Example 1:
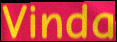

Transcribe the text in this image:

Vinda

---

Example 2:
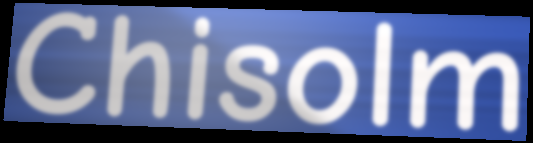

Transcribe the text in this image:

Chisolm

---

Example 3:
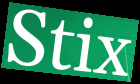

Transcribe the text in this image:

Stix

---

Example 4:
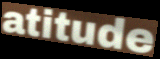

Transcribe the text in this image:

atitude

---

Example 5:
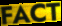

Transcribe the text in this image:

FACT